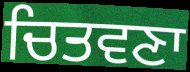
ਚਿਤਵਣਾ